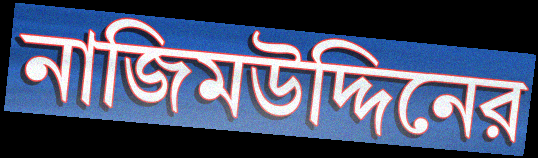
নাজিমউদ্দিনের